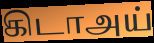
கிடாஅய்